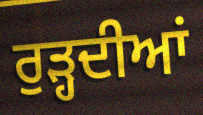
ਰੁੜ੍ਹਦੀਆਂ